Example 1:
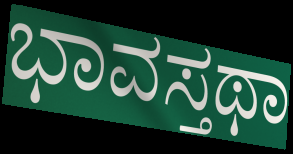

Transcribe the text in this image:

ಭಾವಸ್ತಥಾ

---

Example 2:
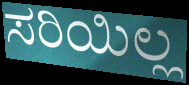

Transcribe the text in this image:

ಸರಿಯಿಲ್ಲ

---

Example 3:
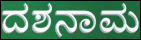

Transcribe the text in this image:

ದಶನಾಮ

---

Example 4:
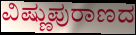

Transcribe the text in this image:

ವಿಷ್ಣುಪುರಾಣದ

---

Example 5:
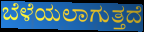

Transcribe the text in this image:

ಬೆಳೆಯಲಾಗುತ್ತದೆ